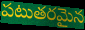
పటుతరమైన